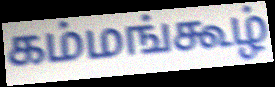
கம்மங்கூழ்